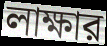
লাক্ষার